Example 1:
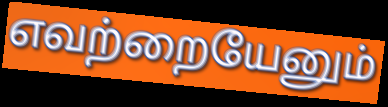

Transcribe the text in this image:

எவற்றையேனும்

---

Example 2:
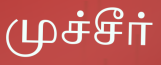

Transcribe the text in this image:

முச்சீர்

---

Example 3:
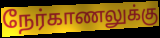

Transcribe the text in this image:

நேர்காணலுக்கு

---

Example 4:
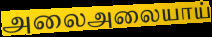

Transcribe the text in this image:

அலைஅலையாய்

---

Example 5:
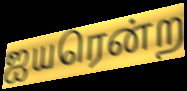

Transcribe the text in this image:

ஐயரென்ற